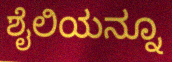
ಶೈಲಿಯನ್ನೂ